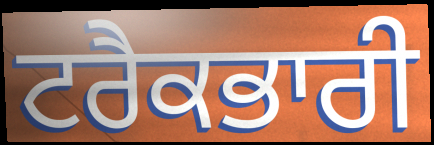
ਟਰੈਕਭਾਰੀ